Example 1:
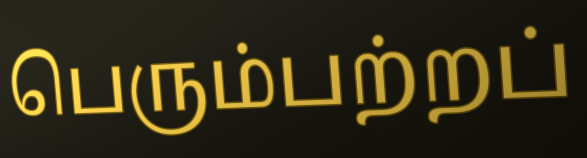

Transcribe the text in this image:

பெரும்பற்றப்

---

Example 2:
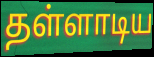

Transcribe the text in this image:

தள்ளாடிய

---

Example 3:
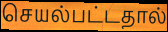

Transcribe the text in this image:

செயல்பட்டதால்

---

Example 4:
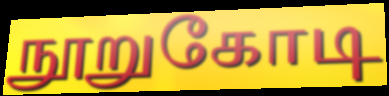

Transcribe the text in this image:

நூறுகோடி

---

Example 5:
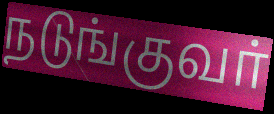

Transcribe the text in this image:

நடுங்குவர்